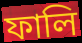
ফালি